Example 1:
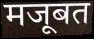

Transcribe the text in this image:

मजूबत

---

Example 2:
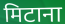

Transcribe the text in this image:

मिटाना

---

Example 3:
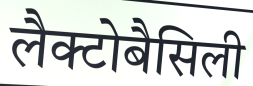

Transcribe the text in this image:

लैक्टोबैसिली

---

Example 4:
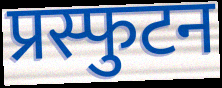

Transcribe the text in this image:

प्रस्‍फुटन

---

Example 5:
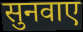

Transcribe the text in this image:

सुनवाए